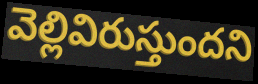
వెల్లివిరుస్తుందని